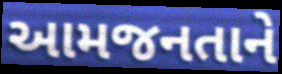
આમજનતાને